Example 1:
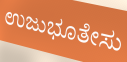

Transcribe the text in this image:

ಉಜುಭೂತೇಸು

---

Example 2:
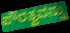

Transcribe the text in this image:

ಪೌರತ್ವವನ್ನು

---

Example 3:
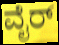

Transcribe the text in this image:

ವೈರ್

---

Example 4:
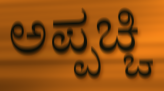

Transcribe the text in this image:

ಅಪ್ಪಚ್ಚಿ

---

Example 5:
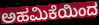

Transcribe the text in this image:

ಅಹಮಿಕೆಯಿಂದ